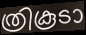
ത്രികൂടാ